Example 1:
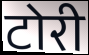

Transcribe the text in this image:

टोरी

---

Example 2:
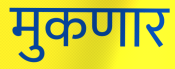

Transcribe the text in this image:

मुकणार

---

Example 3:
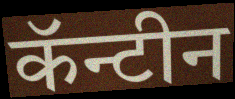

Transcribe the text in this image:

कॅन्टीन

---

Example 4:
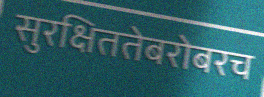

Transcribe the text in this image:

सुरक्षिततेबरोबरच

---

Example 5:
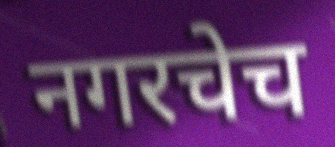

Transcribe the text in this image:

नगरचेच